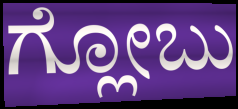
ಗ್ಲೋಬು